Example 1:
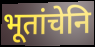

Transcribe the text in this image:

भूतांचेनि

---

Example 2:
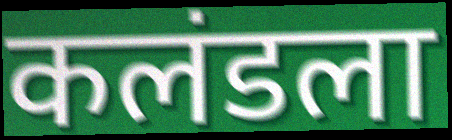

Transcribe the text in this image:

कलंडला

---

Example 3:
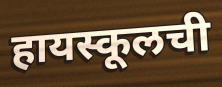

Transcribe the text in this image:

हायस्कूलची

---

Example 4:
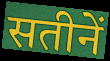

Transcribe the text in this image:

सतीनें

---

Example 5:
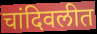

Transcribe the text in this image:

चांदिवलीत